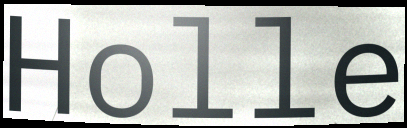
Holle